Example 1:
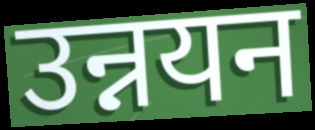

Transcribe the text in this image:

उन्नयन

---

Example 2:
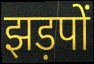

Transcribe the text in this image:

झड़पों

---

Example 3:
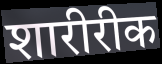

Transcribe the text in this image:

शारीरीक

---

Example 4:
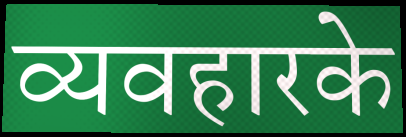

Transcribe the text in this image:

व्यवहारके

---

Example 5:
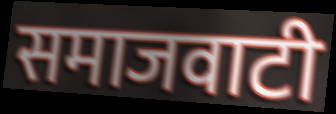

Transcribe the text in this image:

समाजवाटी